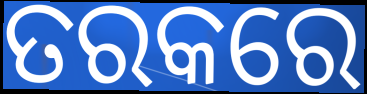
ତରକରେ